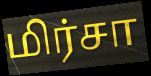
மிர்சா